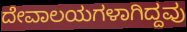
ದೇವಾಲಯಗಳಾಗಿದ್ದವು